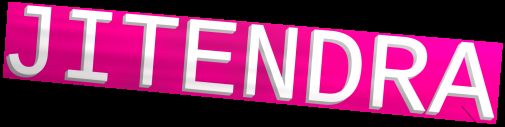
JITENDRA